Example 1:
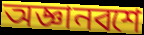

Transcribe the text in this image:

অজ্ঞানবশে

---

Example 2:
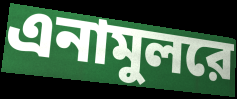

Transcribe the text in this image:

এনামুলরে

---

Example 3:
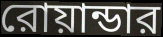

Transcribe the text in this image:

রোয়ান্ডার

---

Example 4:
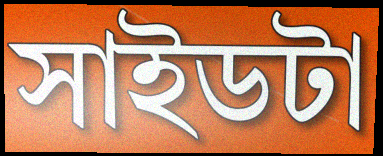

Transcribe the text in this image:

সাইডটা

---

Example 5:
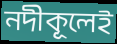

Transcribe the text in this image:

নদীকূলেই